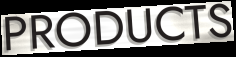
PRODUCTS